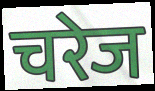
चरेज